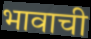
भावाची